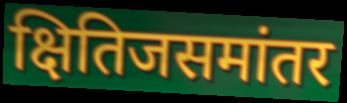
क्षितिजसमांतर